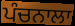
ਪੰਚਨਾਲਾ